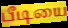
பீடியை